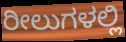
ರೀಲುಗಳಲ್ಲಿ